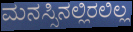
ಮನಸ್ಸಿನಲ್ಲಿರಲಿಲ್ಲ